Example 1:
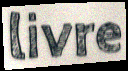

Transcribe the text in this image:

livre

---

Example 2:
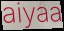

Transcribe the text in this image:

aiyaa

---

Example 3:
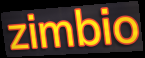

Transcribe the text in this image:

zimbio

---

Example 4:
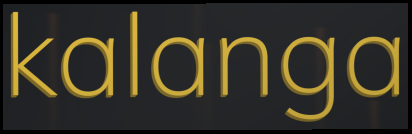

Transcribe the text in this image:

kalanga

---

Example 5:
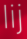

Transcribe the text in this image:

lij